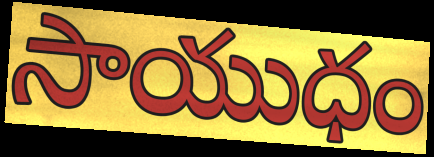
సాయుధం